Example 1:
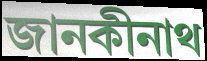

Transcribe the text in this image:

জানকীনাথ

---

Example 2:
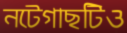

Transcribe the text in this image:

নটেগাছটিও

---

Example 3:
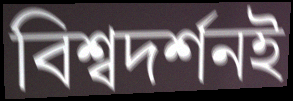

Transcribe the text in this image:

বিশ্বদর্শনই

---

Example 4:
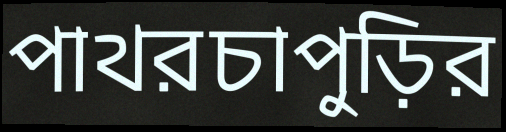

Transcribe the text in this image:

পাথরচাপুড়ির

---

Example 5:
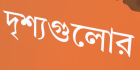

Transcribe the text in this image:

দৃশ্যগুলোর